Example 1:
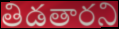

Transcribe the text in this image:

తిడతారని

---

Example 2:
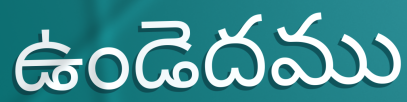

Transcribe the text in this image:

ఉండెదము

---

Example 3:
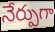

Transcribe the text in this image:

నేర్పుగా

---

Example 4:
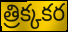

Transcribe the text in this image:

త్రిక్కకర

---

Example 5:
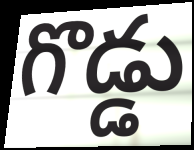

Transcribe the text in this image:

గొడ్డు